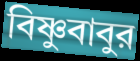
বিষ্ণুবাবুর